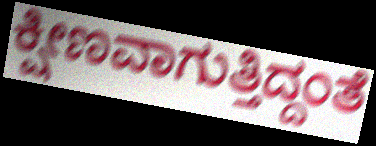
ಕ್ಷೀಣವಾಗುತ್ತಿದ್ದಂತೆ